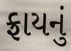
ફ્રાયનું